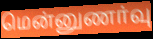
மென்னுணர்வு